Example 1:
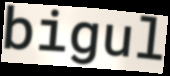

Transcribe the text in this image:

bigul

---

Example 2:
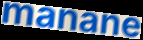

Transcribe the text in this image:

manane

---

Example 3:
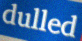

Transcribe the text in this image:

dulled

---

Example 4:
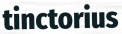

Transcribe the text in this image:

tinctorius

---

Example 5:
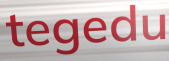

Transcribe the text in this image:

tegedu